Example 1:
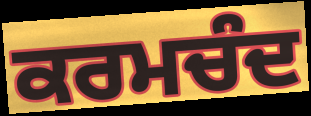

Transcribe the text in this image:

ਕਰਮਚੰਦ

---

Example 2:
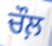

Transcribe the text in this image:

ਚੌਲ਼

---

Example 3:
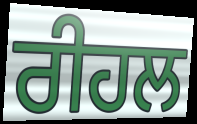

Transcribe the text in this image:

ਰੀਹਲ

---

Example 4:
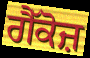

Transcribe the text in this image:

ਗੈੱਕੋਜ਼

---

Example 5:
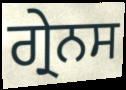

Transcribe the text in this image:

ਗ੍ਰੇਨਸ